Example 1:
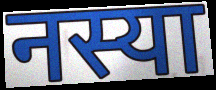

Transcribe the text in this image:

नस्या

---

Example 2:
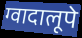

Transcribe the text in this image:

ग्वादालूपे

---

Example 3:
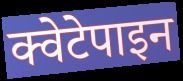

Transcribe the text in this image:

क्वेटेपाइन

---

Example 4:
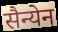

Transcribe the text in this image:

सैन्येन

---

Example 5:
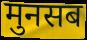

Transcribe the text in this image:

मुनसब